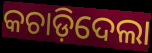
କଚାଡ଼ିଦେଲା